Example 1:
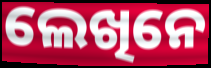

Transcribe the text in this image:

ଲେଖିନେ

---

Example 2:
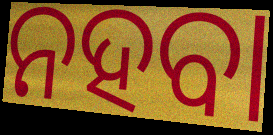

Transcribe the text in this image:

ନହବା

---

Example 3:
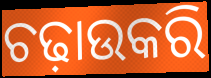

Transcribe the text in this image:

ଚଢ଼ାଉକରି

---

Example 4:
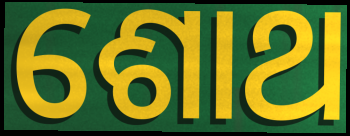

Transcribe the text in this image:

ଶୋଥ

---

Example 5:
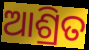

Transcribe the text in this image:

ଆଶ୍ରିତ